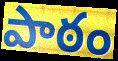
పాఠం